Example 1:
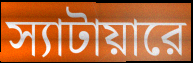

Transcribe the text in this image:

স্যাটায়ারে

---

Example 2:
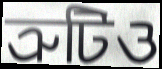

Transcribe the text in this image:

ত্রুটিও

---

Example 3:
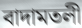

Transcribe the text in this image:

বাদামতলী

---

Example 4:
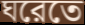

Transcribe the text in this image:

ঘরেতে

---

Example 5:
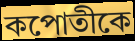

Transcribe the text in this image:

কপোতীকে